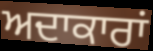
ਅਦਾਕਾਰਾਂ